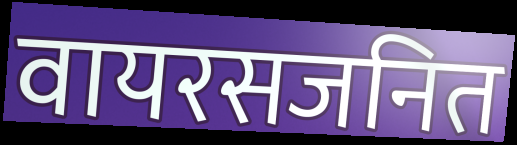
वायरसजनित